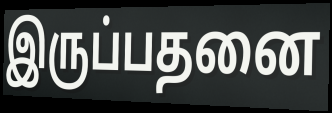
இருப்பதனை